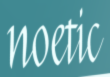
noetic